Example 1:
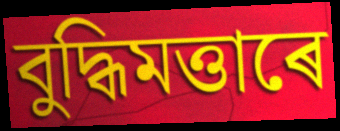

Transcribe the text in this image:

বুদ্ধিমত্তাৰে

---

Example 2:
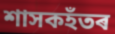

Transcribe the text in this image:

শাসকহঁতৰ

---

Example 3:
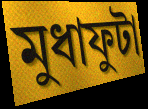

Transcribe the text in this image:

মুধাফুটা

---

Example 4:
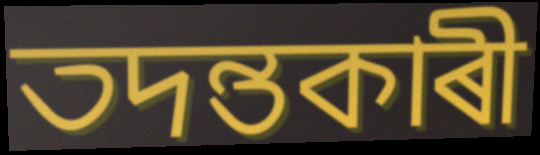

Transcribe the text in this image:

তদন্তকাৰী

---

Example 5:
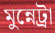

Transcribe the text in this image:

মুন্নেট্ৰা